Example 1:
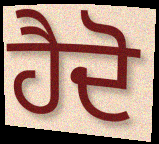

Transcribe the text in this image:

ਹੈਦੋ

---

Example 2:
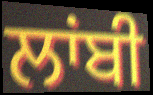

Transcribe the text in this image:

ਲਾਂਬੀ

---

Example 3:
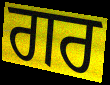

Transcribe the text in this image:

ਗਰ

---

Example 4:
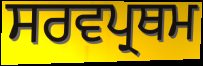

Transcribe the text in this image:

ਸਰਵਪ੍ਰਥਮ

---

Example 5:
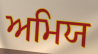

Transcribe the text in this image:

ਅਮਿਯ